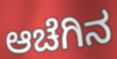
ಆಚೆಗಿನ